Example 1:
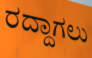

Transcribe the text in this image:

ರದ್ದಾಗಲು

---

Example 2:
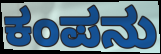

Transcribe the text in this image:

ಕಂಪನು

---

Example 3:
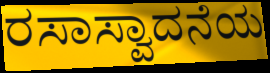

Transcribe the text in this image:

ರಸಾಸ್ವಾದನೆಯ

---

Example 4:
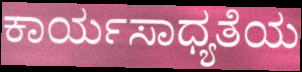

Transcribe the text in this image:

ಕಾರ್ಯಸಾಧ್ಯತೆಯ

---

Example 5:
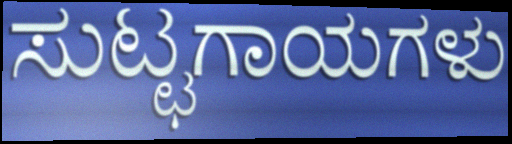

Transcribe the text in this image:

ಸುಟ್ಟಗಾಯಗಳು